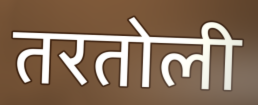
तरतोली